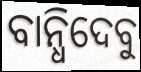
ବାନ୍ଧିଦେବୁ